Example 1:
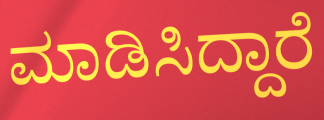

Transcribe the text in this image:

ಮಾಡಿಸಿದ್ದಾರೆ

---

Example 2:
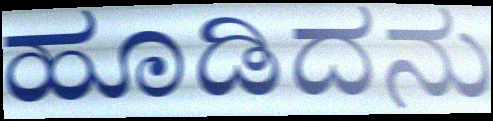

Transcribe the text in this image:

ಹೂಡಿದನು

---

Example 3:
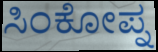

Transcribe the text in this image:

ಸಿಂಕೋಪ್ನ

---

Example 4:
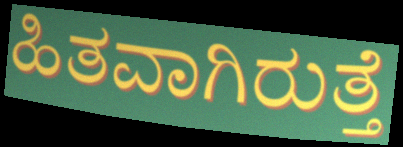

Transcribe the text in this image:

ಹಿತವಾಗಿರುತ್ತೆ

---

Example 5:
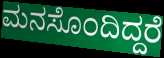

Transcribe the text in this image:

ಮನಸೊಂದಿದ್ದರೆ